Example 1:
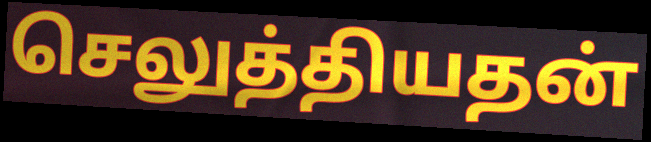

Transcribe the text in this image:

செலுத்தியதன்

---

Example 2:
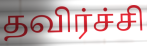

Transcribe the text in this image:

தவிர்ச்சி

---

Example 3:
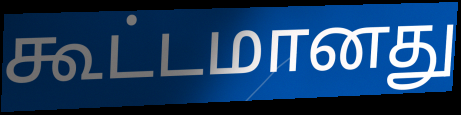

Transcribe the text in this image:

கூட்டமானது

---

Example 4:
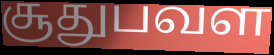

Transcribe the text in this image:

சூதுபவள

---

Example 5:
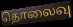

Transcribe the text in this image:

தொலைவு